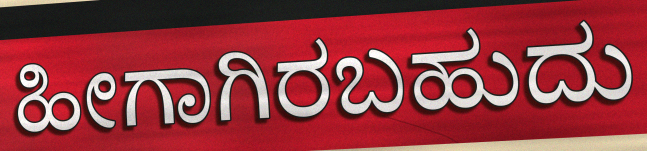
ಹೀಗಾಗಿರಬಹುದು